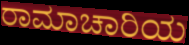
ರಾಮಾಚಾರಿಯ